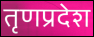
तृणप्रदेश